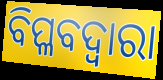
ବିପ୍ଳବଦ୍ୱାରା